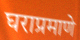
घराप्रमाणे